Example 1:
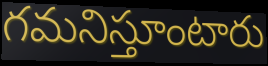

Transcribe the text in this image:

గమనిస్తూంటారు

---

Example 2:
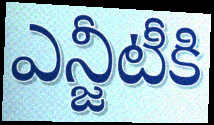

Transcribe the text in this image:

ఎన్జీటీకి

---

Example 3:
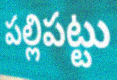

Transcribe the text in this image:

పల్లిపట్టు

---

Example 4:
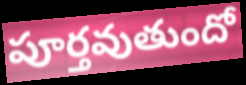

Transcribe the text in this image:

పూర్తవుతుందో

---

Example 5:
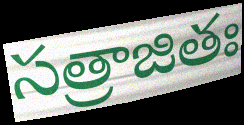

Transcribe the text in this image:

సత్రాజితః